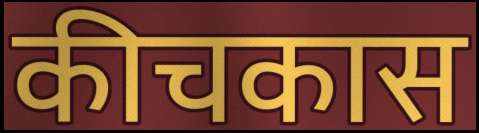
कीचकास